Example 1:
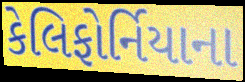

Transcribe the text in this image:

કેલિફોર્નિયાના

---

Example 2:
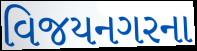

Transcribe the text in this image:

વિજયનગરના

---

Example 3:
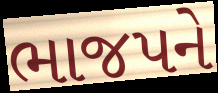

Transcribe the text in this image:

ભાજપને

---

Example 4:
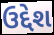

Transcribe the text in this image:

ઉદ્દેશ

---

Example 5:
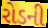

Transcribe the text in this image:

રોડની